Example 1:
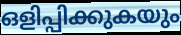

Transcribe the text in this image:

ഒളിപ്പിക്കുകയും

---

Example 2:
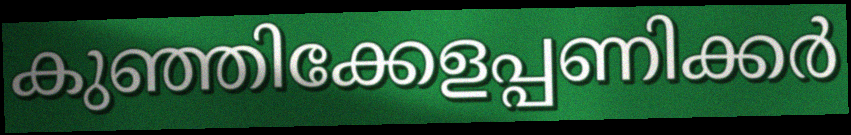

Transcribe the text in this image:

കുഞ്ഞിക്കേളപ്പണിക്കർ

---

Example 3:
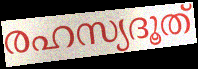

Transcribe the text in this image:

രഹസ്യദൂത്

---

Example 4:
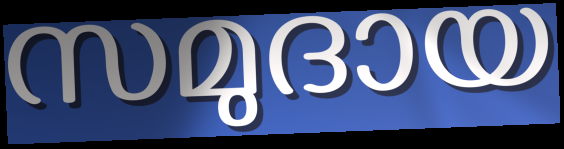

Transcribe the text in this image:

സമുദായ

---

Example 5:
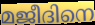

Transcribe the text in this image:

മജീദിനെ